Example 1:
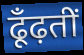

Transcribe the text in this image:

ढूँढ़तीं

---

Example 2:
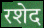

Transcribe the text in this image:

रशेद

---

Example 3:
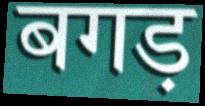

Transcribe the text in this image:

बगड़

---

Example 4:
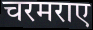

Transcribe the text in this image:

चरमराए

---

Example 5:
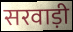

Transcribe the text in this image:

सरवाड़ी